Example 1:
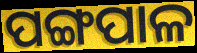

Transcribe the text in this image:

ପଙ୍ଗପାଳ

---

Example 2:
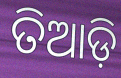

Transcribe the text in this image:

ତିଆଡ଼ି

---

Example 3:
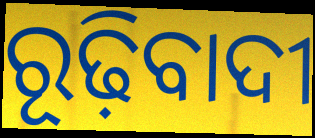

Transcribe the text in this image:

ରୂଢ଼ିବାଦୀ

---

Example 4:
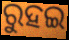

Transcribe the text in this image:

ରୁହଇ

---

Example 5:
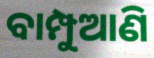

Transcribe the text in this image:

ବାମ୍ପୁଆଣି